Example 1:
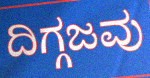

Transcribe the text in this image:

ದಿಗ್ಗಜವು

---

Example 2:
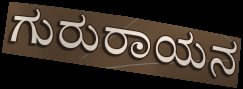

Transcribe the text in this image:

ಗುರುರಾಯನ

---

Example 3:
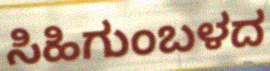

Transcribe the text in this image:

ಸಿಹಿಗುಂಬಳದ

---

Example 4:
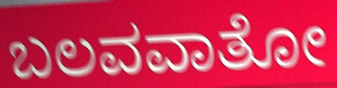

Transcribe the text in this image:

ಬಲವವಾತೋ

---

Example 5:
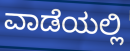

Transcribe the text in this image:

ವಾಡೆಯಲ್ಲಿ